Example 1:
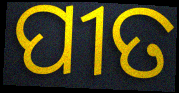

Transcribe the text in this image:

ପୀତ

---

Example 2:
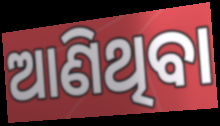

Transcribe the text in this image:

ଆଣିଥିବା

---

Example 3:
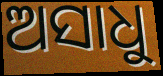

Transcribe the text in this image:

ଅସାଧୁ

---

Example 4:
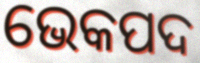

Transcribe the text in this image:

ଭେକପଦ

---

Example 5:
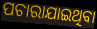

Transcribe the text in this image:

ପଚାରାଯାଇଥିବା